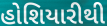
હોશિયારીથી